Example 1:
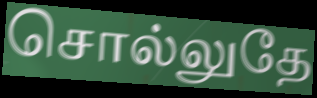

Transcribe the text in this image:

சொல்லுதே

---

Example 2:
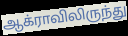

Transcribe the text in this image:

ஆக்ராவிலிருந்து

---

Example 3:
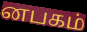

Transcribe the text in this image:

னபகம்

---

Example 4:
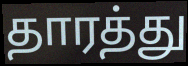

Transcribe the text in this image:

தாரத்து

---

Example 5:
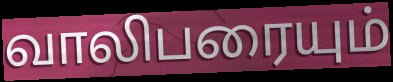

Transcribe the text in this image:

வாலிபரையும்